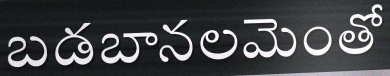
బడబానలమెంతో